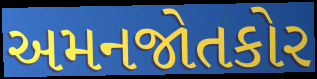
અમનજોતકોર